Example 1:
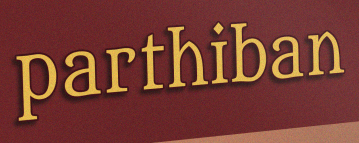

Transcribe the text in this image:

parthiban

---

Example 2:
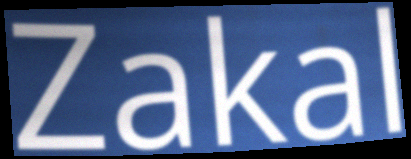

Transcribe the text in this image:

Zakal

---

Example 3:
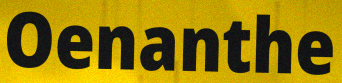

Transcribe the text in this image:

Oenanthe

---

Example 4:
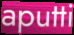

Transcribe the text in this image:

aputti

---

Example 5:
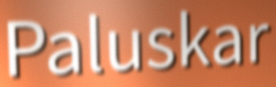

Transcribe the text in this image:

Paluskar